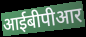
आईबीपीआर